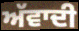
ਅੱਵਾਦੀ